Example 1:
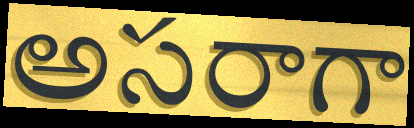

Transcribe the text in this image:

అసరాగా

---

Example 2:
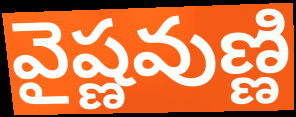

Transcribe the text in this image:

వైష్ణవుణ్ణి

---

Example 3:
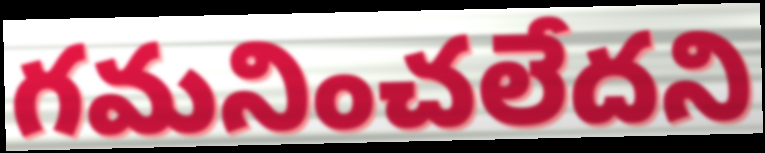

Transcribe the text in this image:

గమనించలేదని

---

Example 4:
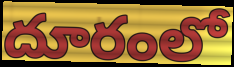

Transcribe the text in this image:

దూరంలో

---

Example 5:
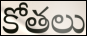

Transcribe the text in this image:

కోతలు